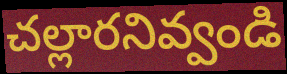
చల్లారనివ్వండి